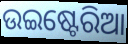
ଉଇଷ୍ଟେରିଆ